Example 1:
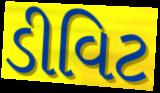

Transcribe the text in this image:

ડીવિટ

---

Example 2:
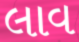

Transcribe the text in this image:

લાવ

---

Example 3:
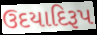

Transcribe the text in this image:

ઉદયાદિરૂપ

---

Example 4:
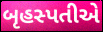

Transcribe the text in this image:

બૃહસ્પતીએ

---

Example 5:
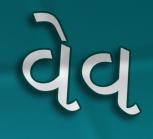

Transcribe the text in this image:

વેવ